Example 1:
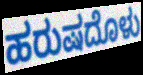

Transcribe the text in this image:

ಹರುಷದೊಳು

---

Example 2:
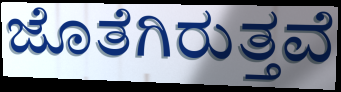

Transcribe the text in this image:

ಜೊತೆಗಿರುತ್ತವೆ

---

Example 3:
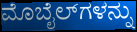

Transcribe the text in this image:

ಮೊಬೈಲ್‌ಗಳನ್ನು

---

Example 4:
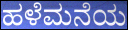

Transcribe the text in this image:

ಹಳೆಮನೆಯ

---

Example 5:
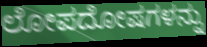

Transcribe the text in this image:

ಲೋಪದೋಷಗಳನ್ನು